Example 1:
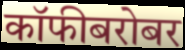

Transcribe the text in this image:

कॉफीबरोबर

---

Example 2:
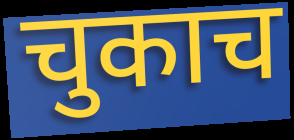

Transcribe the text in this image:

चुकाच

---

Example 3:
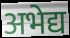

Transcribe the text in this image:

अभेद्य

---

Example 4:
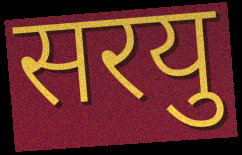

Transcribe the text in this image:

सरयु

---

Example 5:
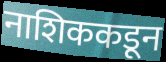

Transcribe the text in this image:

नाशिककडून